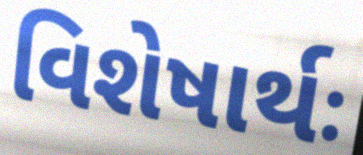
વિશેષાર્થઃ